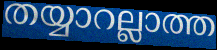
തയ്യാറല്ലാത്ത